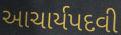
આચાર્યપદવી